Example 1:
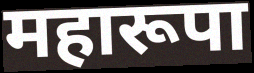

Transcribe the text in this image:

महारूपा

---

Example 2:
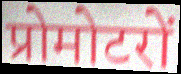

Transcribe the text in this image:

प्रोमोटरों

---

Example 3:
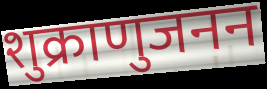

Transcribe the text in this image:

शुक्राणुजनन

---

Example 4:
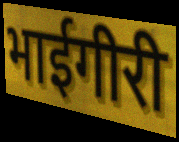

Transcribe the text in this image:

भाईगीरी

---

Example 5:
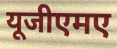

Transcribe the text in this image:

यूजीएमए